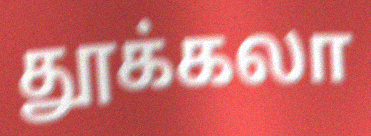
தூக்கலா